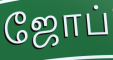
ஜோப்